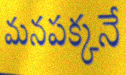
మనపక్కనే